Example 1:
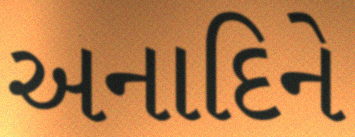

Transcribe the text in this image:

અનાદિને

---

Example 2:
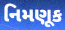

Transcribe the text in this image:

નિમણૂક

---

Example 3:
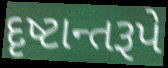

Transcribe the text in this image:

દૃષ્ટાન્તરૂપે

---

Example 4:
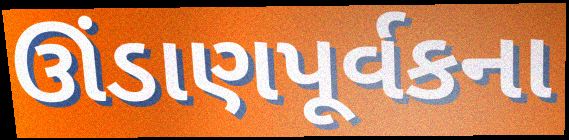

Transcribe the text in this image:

ઊંડાણપૂર્વકના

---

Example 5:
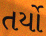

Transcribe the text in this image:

તર્યો